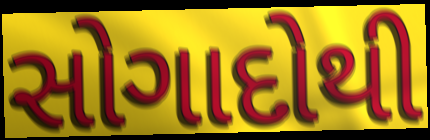
સોગાદોથી